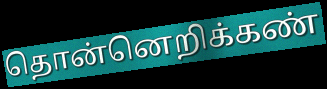
தொன்னெறிக்கண்